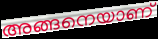
അങ്ങനെയാണ്